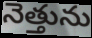
నెత్తును